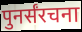
पुनर्संरचना